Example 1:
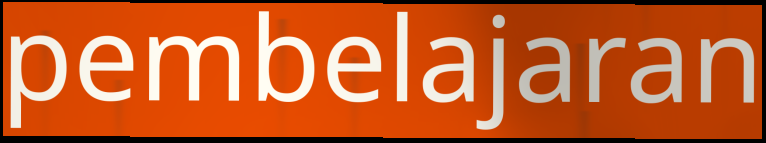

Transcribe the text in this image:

pembelajaran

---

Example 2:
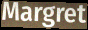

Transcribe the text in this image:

Margret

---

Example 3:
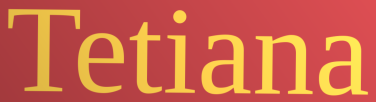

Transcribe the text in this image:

Tetiana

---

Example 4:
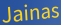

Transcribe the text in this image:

Jainas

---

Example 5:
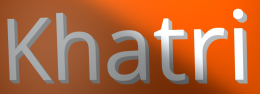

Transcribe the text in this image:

Khatri